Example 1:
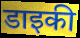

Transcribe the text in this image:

डाइकी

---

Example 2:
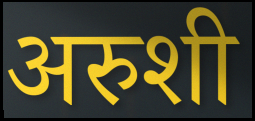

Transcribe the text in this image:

अरुशी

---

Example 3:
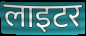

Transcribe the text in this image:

लाइटर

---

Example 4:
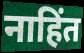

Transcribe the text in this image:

नाहिंत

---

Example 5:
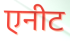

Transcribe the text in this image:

एनीट